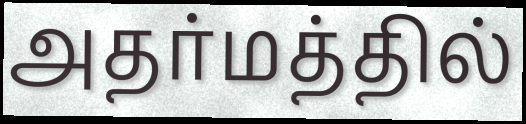
அதர்மத்தில்